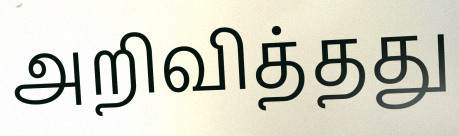
அறிவித்தது